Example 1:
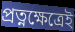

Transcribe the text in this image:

প্রত্নক্ষেত্রেই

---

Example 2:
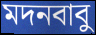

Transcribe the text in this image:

মদনবাবু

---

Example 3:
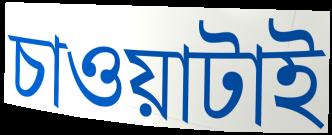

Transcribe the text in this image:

চাওয়াটাই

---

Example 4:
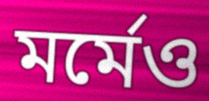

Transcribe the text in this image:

মর্মেও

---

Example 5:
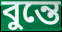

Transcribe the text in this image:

বুন্তে